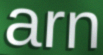
arn